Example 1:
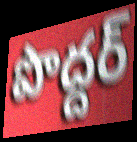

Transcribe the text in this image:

పొద్దర్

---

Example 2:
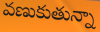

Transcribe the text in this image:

వణుకుతున్నా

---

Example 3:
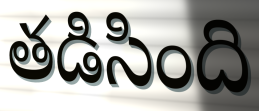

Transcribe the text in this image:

తడిసింది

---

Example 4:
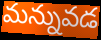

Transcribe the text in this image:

మన్నువడ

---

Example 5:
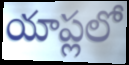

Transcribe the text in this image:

యాప్లలో